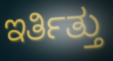
ಇರ್ತಿತ್ತು